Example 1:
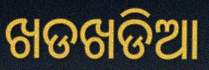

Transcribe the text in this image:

ଖଡଖଡିଆ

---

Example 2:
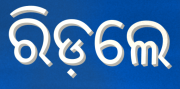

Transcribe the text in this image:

ରିଡ଼ଲେ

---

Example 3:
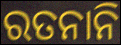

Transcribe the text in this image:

ରତନାନି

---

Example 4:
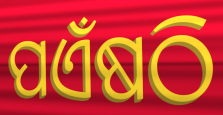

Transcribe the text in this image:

ପଏଁଷଠି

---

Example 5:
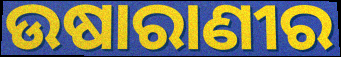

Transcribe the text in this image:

ଉଷାରାଣୀର